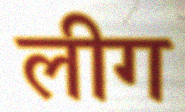
लीग